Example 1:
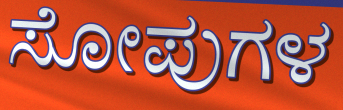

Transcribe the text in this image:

ಸೋಪುಗಳ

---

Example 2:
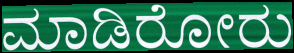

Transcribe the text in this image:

ಮಾಡಿರೋರು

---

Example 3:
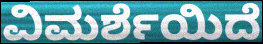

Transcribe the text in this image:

ವಿಮರ್ಶೆಯಿದೆ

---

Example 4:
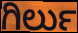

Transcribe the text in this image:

ಗಿರ್ಲು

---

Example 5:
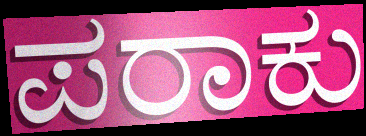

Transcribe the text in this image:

ಪರಾಕು